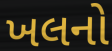
ખલનો